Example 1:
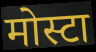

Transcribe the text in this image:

मोस्टा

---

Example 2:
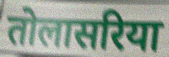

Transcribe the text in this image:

तोलासरिया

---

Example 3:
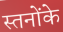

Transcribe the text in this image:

स्तनोंके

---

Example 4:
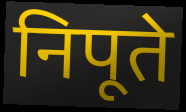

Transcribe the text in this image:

निपूते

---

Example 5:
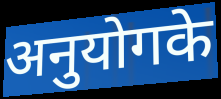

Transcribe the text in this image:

अनुयोगके